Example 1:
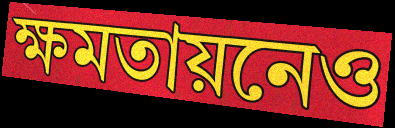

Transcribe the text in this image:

ক্ষমতায়নেও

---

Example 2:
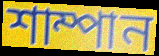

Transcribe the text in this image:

শাম্পান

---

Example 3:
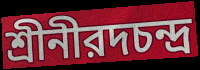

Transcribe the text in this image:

শ্রীনীরদচন্দ্র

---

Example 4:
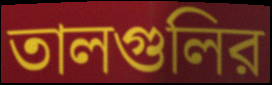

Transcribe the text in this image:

তালগুলির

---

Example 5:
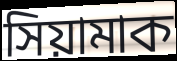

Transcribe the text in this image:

সিয়ামাক